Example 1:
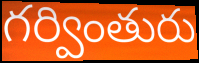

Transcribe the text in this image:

గర్వింతురు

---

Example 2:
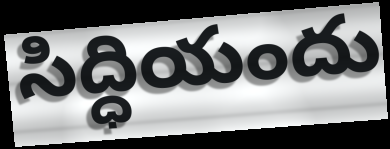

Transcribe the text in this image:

సిద్ధియందు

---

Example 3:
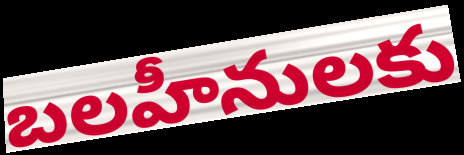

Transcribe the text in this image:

బలహీనులకు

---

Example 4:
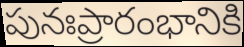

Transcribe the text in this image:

పునఃప్రారంభానికి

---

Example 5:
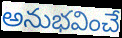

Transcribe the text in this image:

అనుభవించే